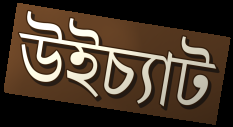
উইচ্যাট